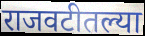
राजवटीतल्या